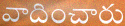
వాదించారు